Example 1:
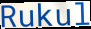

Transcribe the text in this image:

Rukul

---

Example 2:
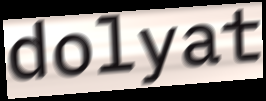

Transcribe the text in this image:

dolyat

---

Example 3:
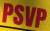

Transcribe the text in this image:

PSVP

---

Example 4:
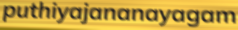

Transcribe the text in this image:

puthiyajananayagam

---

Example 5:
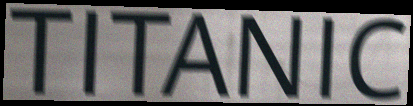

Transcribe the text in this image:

TITANIC